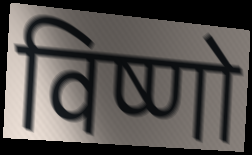
विष्णो